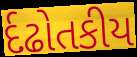
ર્દઢોતકીય